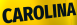
CAROLINA